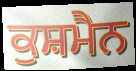
ਕੁਸ਼ਮੈਨ